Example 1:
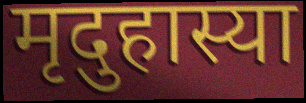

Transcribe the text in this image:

मृदुहास्या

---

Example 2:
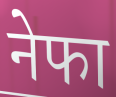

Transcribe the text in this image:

नेफा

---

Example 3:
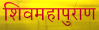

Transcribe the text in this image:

शिवमहापुराण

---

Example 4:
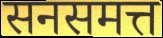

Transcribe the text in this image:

सनसमत्त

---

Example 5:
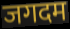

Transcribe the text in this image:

जगदम